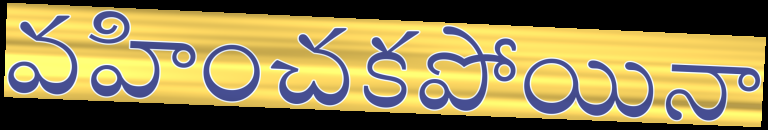
వహించకపోయినా